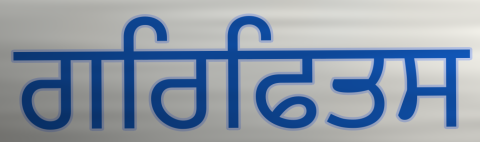
ਗਰਿਫਿਤਸ